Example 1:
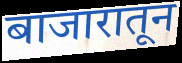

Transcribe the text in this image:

बाजारातून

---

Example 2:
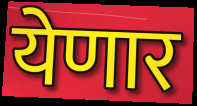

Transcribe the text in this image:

येणार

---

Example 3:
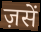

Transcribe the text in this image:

ज़सें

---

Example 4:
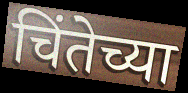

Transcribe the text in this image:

चिंतेच्या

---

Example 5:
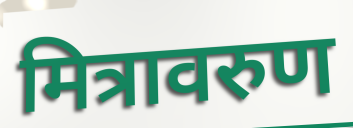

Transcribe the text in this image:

मित्रावरुण